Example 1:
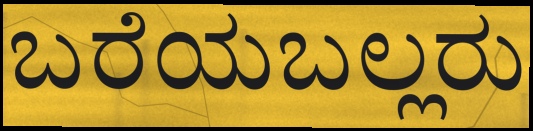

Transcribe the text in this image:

ಬರೆಯಬಲ್ಲರು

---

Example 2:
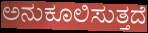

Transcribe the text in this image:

ಅನುಕೂಲಿಸುತ್ತದೆ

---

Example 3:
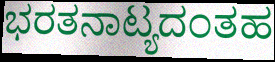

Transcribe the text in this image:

ಭರತನಾಟ್ಯದಂತಹ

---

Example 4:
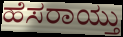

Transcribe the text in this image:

ಹೆಸರಾಯ್ತು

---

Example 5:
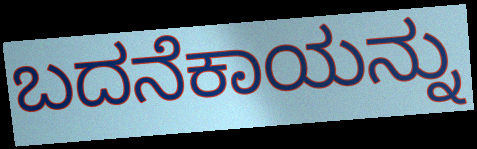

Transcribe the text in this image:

ಬದನೆಕಾಯನ್ನು